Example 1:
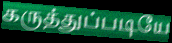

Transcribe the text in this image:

கருத்துப்படியே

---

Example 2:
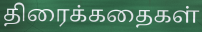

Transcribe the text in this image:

திரைக்கதைகள்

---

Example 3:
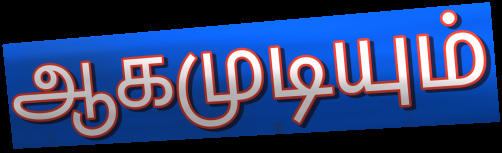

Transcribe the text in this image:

ஆகமுடியும்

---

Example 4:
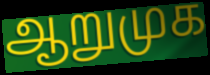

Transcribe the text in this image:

ஆறுமுக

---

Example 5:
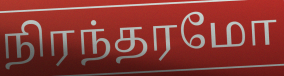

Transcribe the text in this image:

நிரந்தரமோ